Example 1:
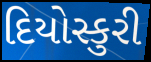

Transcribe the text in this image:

દિયોસ્કુરી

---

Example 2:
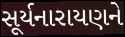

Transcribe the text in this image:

સૂર્યનારાયણને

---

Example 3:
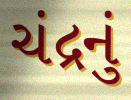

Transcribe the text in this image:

ચંદ્રનું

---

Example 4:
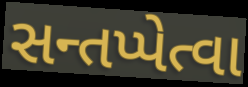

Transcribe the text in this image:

સન્તપ્પેત્વા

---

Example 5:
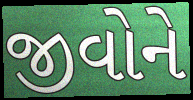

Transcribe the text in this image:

જીવોને